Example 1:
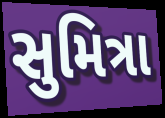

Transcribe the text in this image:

સુમિત્રા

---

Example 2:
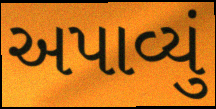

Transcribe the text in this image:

અપાવ્યું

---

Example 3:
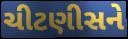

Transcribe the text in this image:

ચીટણીસને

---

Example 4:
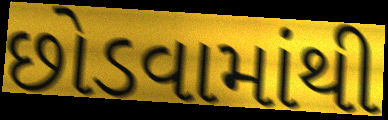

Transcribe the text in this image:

છોડવામાંથી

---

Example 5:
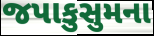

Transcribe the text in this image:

જપાકુસુમના